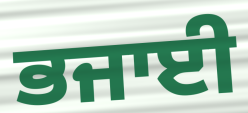
ਭਜਾਈ